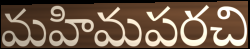
మహిమపరచి